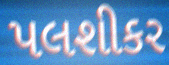
પલશીકર